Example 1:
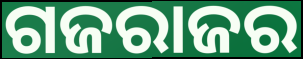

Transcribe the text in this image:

ଗଜରାଜର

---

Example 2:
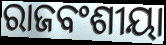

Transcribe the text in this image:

ରାଜବଂଶୀୟା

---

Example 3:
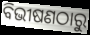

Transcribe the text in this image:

ବିଭୀଷଣଠାରୁ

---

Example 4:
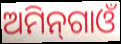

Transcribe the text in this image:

ଅମିନ୍‌ଗାଓଁ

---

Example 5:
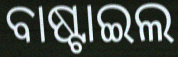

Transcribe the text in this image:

ବାଷ୍ଟାଇଲ